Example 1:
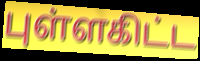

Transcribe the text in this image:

புள்ளகிட்ட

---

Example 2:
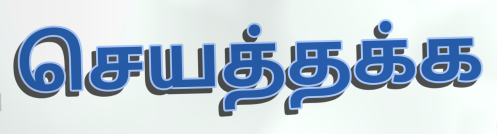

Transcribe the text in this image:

செயத்தக்க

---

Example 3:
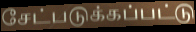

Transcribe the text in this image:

சேட்படுக்கப்பட்டு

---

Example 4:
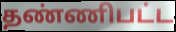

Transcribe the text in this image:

தண்ணிபட்ட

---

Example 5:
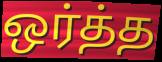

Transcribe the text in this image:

ஒர்த்த